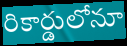
రికార్డులోనూ